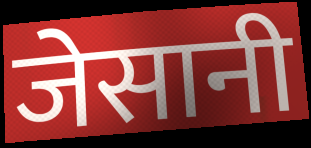
जेसानी